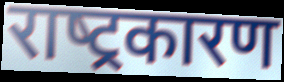
राष्ट्रकारण